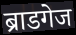
ब्राडगेज